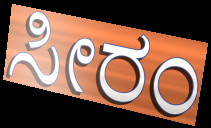
ಸೀರಂ